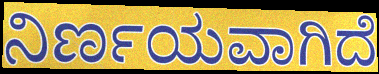
ನಿರ್ಣಯವಾಗಿದೆ